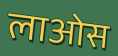
लाओस